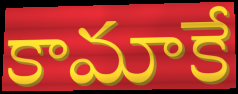
కామాకే